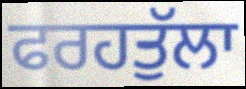
ਫਰਹਤੁੱਲਾ